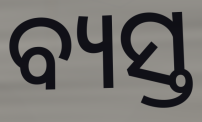
ବ୍ୟସ୍ତ